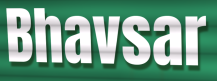
Bhavsar